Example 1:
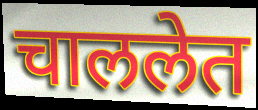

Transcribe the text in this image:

चाललेत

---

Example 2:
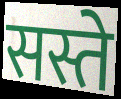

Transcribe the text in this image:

सस्ते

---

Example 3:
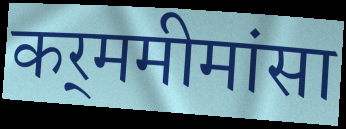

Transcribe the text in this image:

कर्ममीमांसा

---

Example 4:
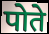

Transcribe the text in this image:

पोते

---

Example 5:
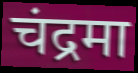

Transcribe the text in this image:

चंद्रमा